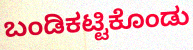
ಬಂಡಿಕಟ್ಟಿಕೊಂಡು